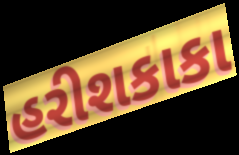
હરીશકાકા